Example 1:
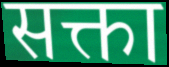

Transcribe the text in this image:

सक्ता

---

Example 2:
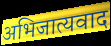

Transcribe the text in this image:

अभिजात्यवाद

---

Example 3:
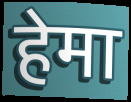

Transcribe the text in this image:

हेमा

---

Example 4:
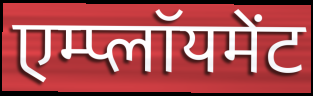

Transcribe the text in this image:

एम्प्लॉयमेंट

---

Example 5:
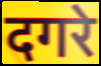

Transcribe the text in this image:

दगरे